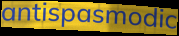
antispasmodic